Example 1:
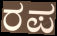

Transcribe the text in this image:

ರಪ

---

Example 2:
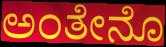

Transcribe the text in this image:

ಅಂತೇನೊ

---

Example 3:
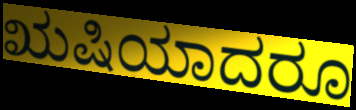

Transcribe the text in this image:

ಋಷಿಯಾದರೂ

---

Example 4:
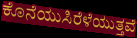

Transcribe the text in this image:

ಕೊನೆಯುಸಿರೆಳೆಯುತ್ತವೆ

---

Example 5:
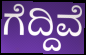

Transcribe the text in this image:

ಗೆದ್ದಿವೆ